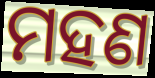
ମହଣ